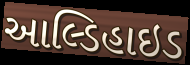
આલ્ડિહાઇડ